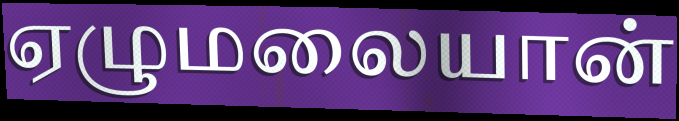
ஏழுமலையான்